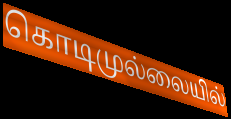
கொடிமுல்லையில்